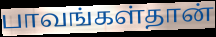
பாவங்கள்தான்